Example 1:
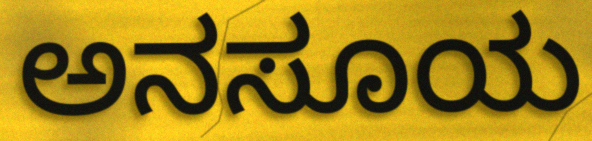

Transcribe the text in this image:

ಅನಸೂಯ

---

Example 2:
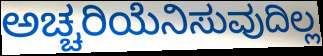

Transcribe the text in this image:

ಅಚ್ಚರಿಯೆನಿಸುವುದಿಲ್ಲ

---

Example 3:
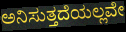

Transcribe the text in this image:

ಅನಿಸುತ್ತದೆಯಲ್ಲವೇ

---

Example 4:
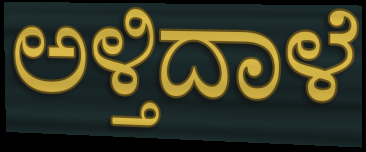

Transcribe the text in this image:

ಅಳ್ತಿದಾಳೆ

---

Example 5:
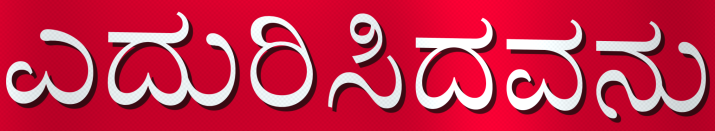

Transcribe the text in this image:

ಎದುರಿಸಿದವನು